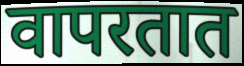
वापरतात